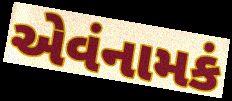
એવંનામકં